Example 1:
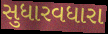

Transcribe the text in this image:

સુધારવધારા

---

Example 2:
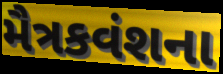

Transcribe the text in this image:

મૈત્રકવંશના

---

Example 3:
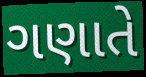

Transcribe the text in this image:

ગણાતે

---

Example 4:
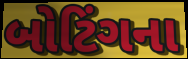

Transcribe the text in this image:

બોટિંગના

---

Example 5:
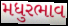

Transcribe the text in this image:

મધુરભાવ